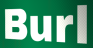
Burl